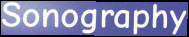
Sonography